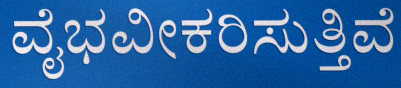
ವೈಭವೀಕರಿಸುತ್ತಿವೆ